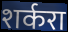
शर्करा